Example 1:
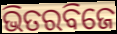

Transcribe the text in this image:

ଭିତରବିଜେ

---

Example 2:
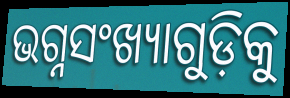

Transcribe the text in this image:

ଭଗ୍ନସଂଖ୍ୟାଗୁଡ଼ିକୁ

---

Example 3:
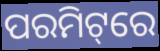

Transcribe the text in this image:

ପରମିଟ୍‌ରେ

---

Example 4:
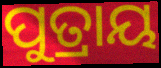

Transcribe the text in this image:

ପୁତ୍ରାୟ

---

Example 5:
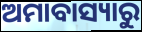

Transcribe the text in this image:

ଅମାବାସ୍ୟାରୁ